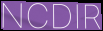
NCDIR